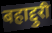
बहाद्दुरी